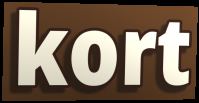
kort